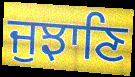
ਜੁਝਾਣਿ